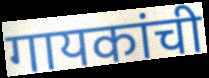
गायकांची